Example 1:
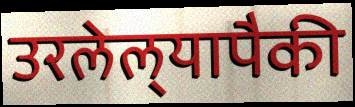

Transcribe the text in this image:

उरलेल्यापैकी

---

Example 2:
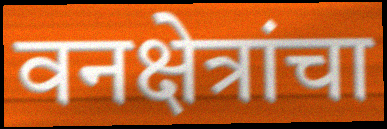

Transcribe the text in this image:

वनक्षेत्रांचा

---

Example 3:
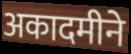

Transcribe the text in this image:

अकादमीने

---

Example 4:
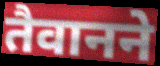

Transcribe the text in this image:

तैवानने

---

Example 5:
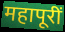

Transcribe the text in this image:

महापूरीं